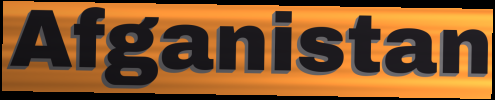
Afganistan